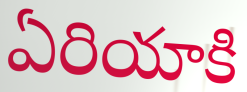
ఏరియాకి